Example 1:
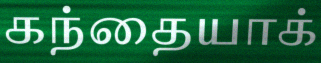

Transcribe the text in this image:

கந்தையாக்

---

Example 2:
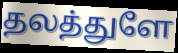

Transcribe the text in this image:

தலத்துளே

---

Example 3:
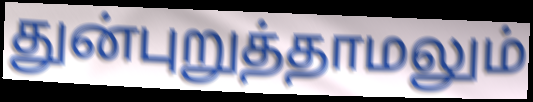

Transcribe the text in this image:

துன்புறுத்தாமலும்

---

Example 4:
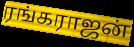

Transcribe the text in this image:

ரங்கராஜன்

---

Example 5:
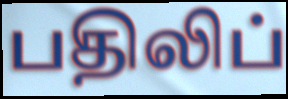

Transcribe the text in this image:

பதிலிப்